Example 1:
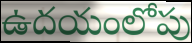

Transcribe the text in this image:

ఉదయంలోపు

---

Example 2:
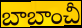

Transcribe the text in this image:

బాబాంచీ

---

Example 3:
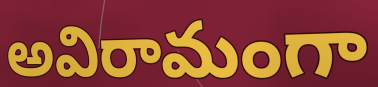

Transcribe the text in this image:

అవిరామంగా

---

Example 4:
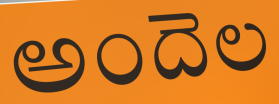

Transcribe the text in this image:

అందెల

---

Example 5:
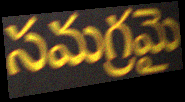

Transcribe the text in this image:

సమగ్రమై